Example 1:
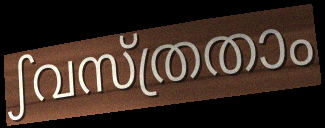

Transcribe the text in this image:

ഽവസ്ത്രതാം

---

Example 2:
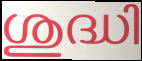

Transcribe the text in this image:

ശുദ്ധി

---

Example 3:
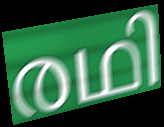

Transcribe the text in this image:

രഥി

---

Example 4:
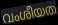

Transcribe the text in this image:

വംശീയത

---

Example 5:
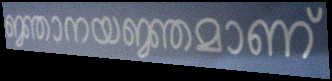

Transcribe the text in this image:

ജ്ഞാനയജ്ഞമാണ്